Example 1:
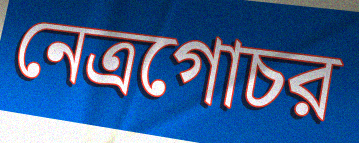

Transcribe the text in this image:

নেত্রগোচর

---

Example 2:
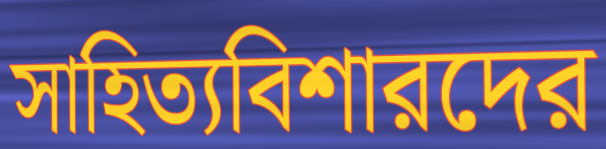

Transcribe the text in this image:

সাহিত্যবিশারদের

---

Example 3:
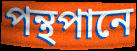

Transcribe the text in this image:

পন্থপানে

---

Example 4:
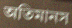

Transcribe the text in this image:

অতিমানস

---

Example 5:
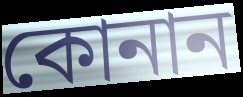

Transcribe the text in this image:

কোনান